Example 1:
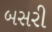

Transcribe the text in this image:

બસરી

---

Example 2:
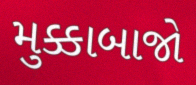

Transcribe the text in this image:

મુક્કાબાજો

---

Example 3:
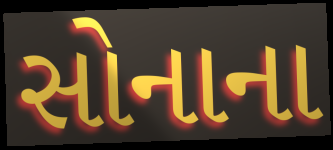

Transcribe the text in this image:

સોનાના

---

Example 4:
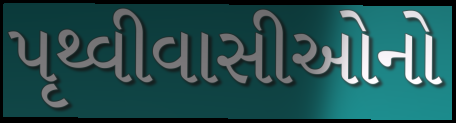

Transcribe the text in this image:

પૃથ્વીવાસીઓનો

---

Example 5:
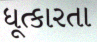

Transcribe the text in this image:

ધૂત્કારતા